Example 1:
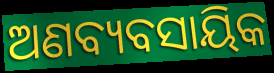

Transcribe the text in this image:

ଅଣବ୍ୟବସାୟିକ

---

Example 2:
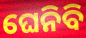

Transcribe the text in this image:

ଘେନିବି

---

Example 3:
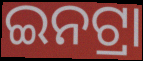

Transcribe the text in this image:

ଇନଟ୍ରା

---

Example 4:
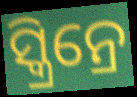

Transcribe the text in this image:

ସ୍କ୍ରିନ୍ରେ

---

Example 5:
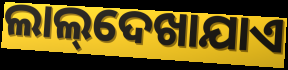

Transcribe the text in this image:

ଲାଲ୍‌ଦେଖାଯାଏ